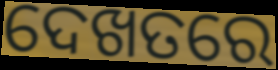
ଦେଖତରେ